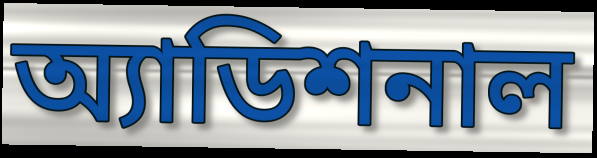
অ্যাডিশনাল